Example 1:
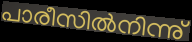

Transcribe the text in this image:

പാരീസിൽനിന്നു്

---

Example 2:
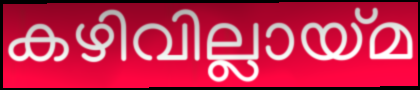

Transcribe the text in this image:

കഴിവില്ലായ്മ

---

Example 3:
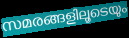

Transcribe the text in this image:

സമരങ്ങളിലൂടെയും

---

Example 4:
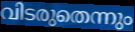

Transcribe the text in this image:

വിടരുതെന്നും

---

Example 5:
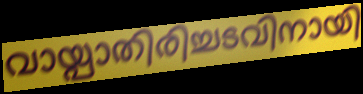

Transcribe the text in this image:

വായ്പാതിരിച്ചടവിനായി